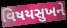
વિષયસુખને